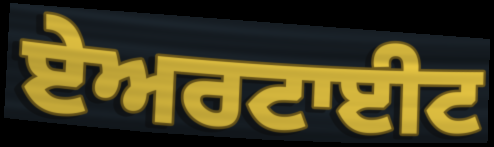
ਏਅਰਟਾਈਟ